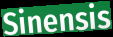
Sinensis